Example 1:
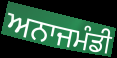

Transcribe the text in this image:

ਅਨਾਜਮੰਡੀ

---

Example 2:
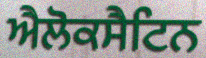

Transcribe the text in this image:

ਐਲੋਕਸੈਟਿਨ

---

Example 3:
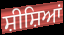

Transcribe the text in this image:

ਸ਼ੀਸ਼ਿਆਂ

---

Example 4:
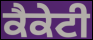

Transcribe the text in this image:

ਕੈਕੇਟੀ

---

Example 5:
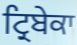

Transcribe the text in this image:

ਟ੍ਰਿਬੇਕਾ